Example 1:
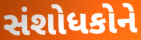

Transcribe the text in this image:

સંશોધકોને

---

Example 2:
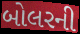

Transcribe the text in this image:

બોલરની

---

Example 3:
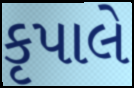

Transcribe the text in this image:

કૃપાલે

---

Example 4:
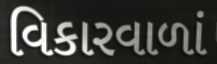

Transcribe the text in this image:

વિકારવાળાં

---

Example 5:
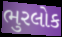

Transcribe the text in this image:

ભુરલોક